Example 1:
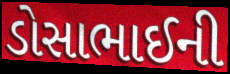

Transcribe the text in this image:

ડોસાભાઈની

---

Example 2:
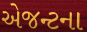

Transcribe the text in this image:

એજન્ટના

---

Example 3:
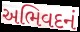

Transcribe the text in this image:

અભિવદનં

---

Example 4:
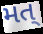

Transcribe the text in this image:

મત્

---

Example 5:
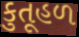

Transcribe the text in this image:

કુતૂહળ